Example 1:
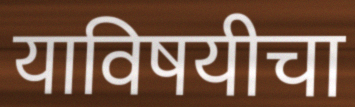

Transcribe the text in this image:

याविषयीचा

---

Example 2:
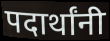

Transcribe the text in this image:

पदार्थांनी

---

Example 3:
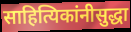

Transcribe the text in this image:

साहित्यिकांनीसुद्धा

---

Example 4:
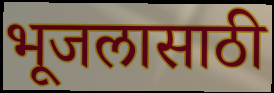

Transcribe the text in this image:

भूजलासाठी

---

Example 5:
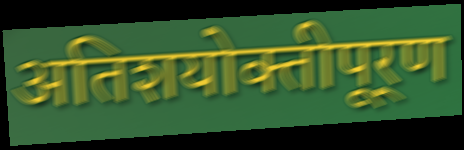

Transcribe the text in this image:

अतिशयोक्‍तीपूर्ण